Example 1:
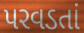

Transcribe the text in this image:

પરવડતાં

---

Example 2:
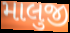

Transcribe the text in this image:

માલુજી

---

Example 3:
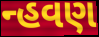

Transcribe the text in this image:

ન્હવણ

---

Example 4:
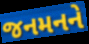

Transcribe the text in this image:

જનમનને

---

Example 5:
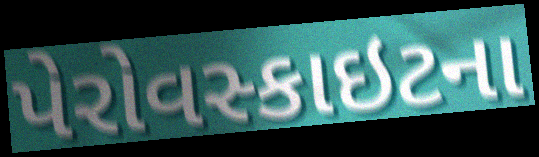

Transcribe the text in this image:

પેરોવસ્કાઇટના